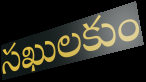
సఖులకుం